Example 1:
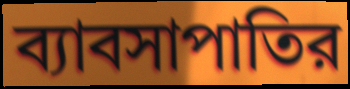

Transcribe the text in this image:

ব্যাবসাপাতির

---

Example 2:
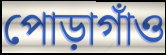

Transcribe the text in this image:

পোড়াগাঁও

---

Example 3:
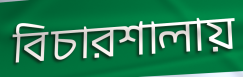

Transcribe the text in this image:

বিচারশালায়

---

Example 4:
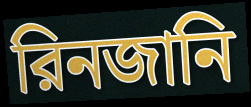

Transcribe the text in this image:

রিনজানি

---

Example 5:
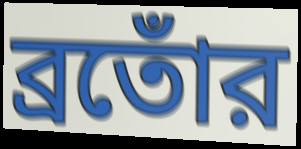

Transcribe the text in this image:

ব্রতোঁর